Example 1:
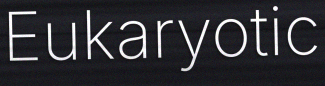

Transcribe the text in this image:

Eukaryotic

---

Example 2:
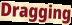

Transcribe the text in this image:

Dragging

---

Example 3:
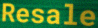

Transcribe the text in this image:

Resale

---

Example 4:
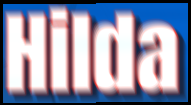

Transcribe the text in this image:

Hilda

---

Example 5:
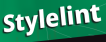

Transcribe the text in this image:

Stylelint